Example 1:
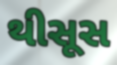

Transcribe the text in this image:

થીસૂસ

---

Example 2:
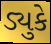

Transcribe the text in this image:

ડ્યુકે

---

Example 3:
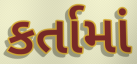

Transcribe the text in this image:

કર્તામાં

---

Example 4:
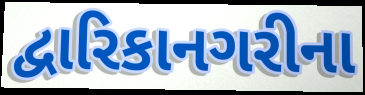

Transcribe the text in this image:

દ્વારિકાનગરીના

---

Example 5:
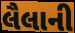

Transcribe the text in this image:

લૈલાની